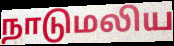
நாடுமலிய